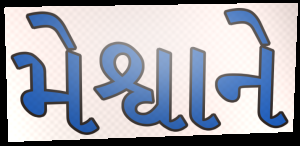
મેશ્વાને